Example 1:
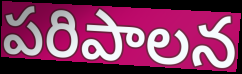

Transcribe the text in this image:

పరిపాలన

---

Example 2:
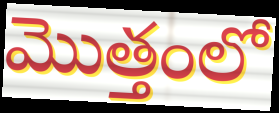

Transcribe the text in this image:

మొత్తంలో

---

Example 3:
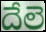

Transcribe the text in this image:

దేలె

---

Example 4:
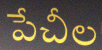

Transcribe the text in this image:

పేచీల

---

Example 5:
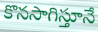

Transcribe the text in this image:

కొనసాగిస్తూనే